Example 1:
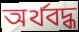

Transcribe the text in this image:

অর্থবদ্ধ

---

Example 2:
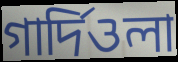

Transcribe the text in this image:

গার্দিওলা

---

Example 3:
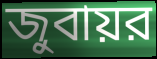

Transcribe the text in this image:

জুবায়র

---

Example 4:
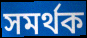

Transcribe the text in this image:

সমর্থক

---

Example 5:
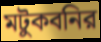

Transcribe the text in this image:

মটুকবনির